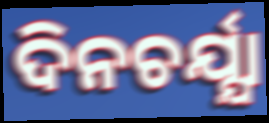
ଦିନଚର୍ଯ୍ଯା